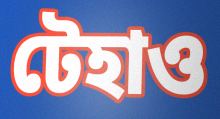
টেহাও